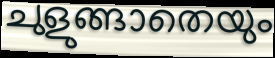
ചുളുങ്ങാതെയും